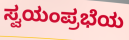
ಸ್ವಯಂಪ್ರಭೆಯ